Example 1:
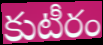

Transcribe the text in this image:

కుటీరం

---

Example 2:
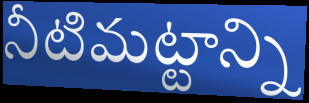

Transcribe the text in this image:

నీటిమట్టాన్ని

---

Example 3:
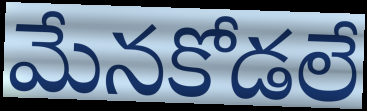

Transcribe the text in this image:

మేనకోడలే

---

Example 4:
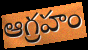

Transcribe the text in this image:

ఆగ్రహం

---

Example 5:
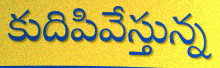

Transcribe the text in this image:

కుదిపివేస్తున్న